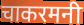
चाकरमनी